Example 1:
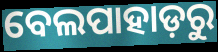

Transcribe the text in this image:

ବେଲପାହାଡ଼ରୁ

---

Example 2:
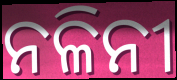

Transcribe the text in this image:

ନଳିନୀ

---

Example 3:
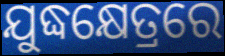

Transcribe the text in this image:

ଯୁଦ୍ଧକ୍ଷେତ୍ରରେ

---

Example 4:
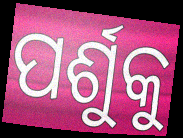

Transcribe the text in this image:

ପର୍ଶୁକୁ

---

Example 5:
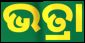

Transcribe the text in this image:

ଭତ୍ରା